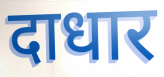
दाधार